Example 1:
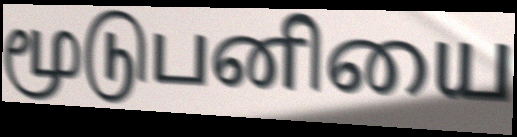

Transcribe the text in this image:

மூடுபனியை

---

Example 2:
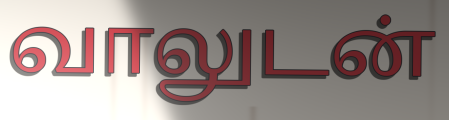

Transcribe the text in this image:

வாலுடன்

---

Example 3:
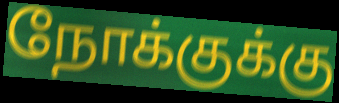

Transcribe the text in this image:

நோக்குக்கு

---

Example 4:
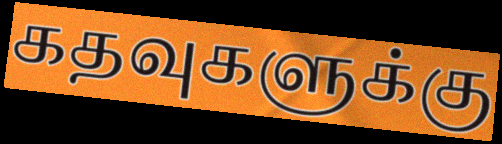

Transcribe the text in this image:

கதவுகளுக்கு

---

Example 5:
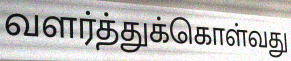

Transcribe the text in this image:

வளர்த்துக்கொள்வது